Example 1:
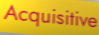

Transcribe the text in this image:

Acquisitive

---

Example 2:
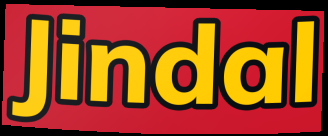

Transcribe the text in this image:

Jindal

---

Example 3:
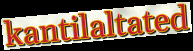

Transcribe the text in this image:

kantilaltated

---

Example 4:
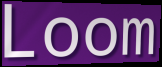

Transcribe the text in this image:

Loom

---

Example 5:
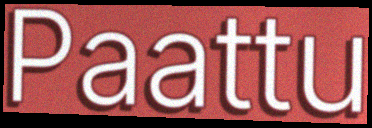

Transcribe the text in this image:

Paattu